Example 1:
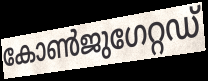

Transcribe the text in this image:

കോൺജുഗേറ്റഡ്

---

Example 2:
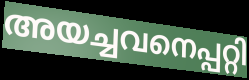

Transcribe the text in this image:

അയച്ചവനെപ്പറ്റി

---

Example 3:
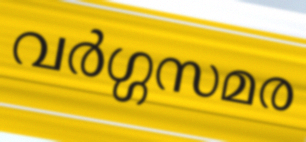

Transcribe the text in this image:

വർഗ്ഗസമര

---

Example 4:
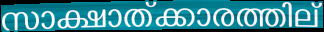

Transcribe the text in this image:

സാക്ഷാത്ക്കാരത്തില്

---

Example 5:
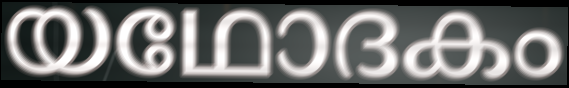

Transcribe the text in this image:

യഥോദകം